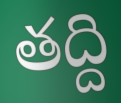
తద్ది